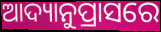
ଆଦ୍ୟାନୁପ୍ରାସରେ